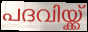
പദവിയ്ക്ക്